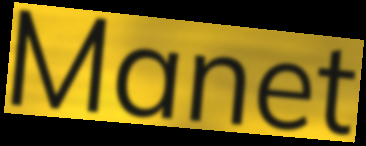
Manet